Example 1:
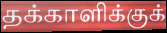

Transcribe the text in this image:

தக்காளிக்குக்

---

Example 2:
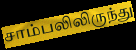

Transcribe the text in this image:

சாம்பலிலிருந்து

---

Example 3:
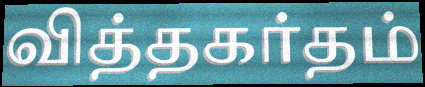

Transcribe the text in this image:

வித்தகர்தம்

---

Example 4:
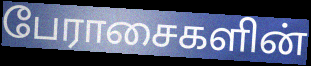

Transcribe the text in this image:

பேராசைகளின்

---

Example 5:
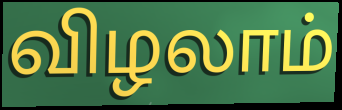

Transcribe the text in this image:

விழலாம்